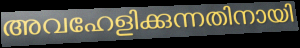
അവഹേളിക്കുന്നതിനായി